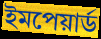
ইমপেয়াৰ্ড